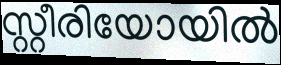
സ്റ്റീരിയോയിൽ